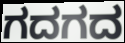
ಗದಗದ